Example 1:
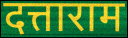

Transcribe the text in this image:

दत्ताराम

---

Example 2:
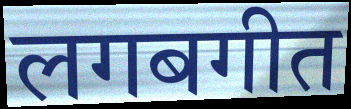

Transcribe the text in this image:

लगबगीत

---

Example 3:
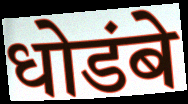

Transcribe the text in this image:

धोडंबे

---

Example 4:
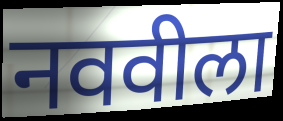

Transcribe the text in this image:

नववीला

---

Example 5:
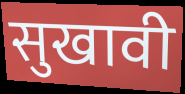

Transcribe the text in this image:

सुखावी